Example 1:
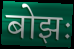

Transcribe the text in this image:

बोझः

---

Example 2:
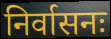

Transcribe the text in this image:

निर्वासनः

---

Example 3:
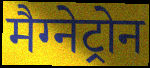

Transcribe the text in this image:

मैग्नेट्रोन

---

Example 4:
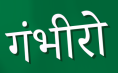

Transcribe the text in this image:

गंभीरो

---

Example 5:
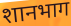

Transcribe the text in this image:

शानभाग